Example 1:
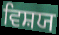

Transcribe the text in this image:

ਵਿਸ਼ਯ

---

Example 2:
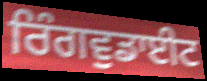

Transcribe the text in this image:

ਰਿੰਗਵੁਡਾਈਟ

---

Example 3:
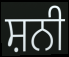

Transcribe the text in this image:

ਸ਼ਨੀ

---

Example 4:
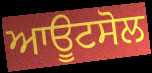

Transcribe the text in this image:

ਆਊਟਸੋਲ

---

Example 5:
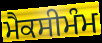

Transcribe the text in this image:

ਮੈਕਸੀਮੰਮ